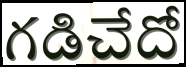
గడిచేదో